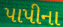
પાપીના